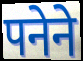
पनेने